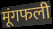
मूंगफली